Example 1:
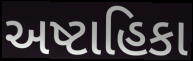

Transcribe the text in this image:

અષ્ટાહિકા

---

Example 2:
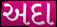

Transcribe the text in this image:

અદા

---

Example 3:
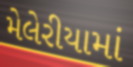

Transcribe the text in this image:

મેલેરીયામાં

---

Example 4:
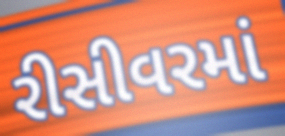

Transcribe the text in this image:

રીસીવરમાં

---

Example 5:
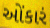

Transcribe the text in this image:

ઓંકારં